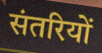
संतरियों